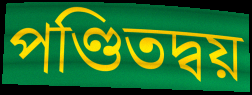
পণ্ডিতদ্বয়